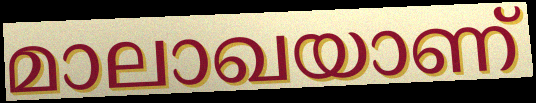
മാലാഖയാണ്